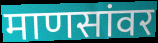
माणसांवर